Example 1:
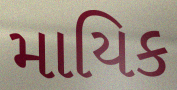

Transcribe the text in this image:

માયિક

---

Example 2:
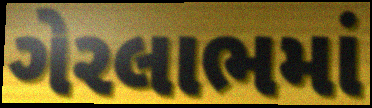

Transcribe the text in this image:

ગેરલાભમાં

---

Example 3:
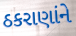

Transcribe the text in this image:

ઠકરાણાંને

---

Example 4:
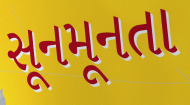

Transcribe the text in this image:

સૂનમૂનતા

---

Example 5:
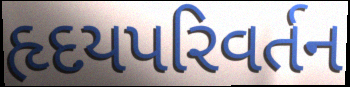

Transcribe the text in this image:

હૃદયપરિવર્તન